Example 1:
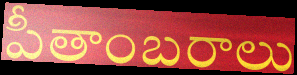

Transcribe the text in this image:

పీతాంబరాలు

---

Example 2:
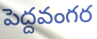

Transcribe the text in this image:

పెద్దవంగర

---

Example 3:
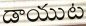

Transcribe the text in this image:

డాయుట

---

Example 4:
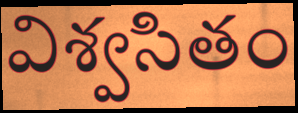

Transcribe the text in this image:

విశ్వసితం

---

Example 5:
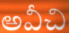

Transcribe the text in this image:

అవీచి